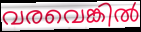
വരവെങ്കിൽ